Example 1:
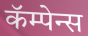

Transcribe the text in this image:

कॅम्पेन्स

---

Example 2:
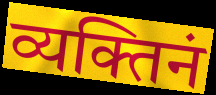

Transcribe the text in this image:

व्यक्तिनं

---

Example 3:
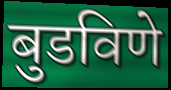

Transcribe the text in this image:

बुडविणे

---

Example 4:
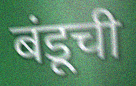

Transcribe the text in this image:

बंडूची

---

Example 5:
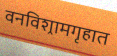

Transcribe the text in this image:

वनविश्रामगृहात